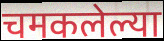
चमकलेल्या